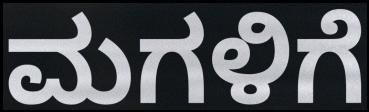
ಮಗಳಿಗೆ